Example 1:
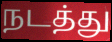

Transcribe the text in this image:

நடத்து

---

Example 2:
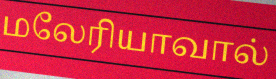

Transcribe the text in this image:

மலேரியாவால்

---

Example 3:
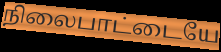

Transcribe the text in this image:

நிலைபாட்டையே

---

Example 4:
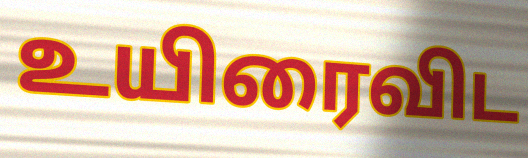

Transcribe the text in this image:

உயிரைவிட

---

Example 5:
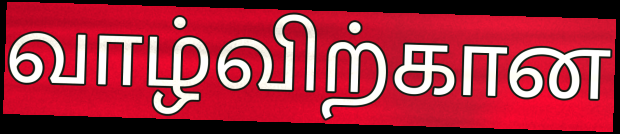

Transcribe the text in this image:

வாழ்விற்கான